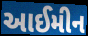
આઈમીન